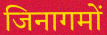
जिनागमों